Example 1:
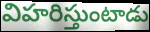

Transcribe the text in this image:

విహరిస్తుంటాడు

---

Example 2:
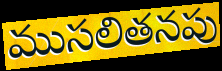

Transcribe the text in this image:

ముసలితనపు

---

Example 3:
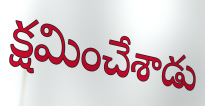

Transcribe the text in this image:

క్షమించేశాడు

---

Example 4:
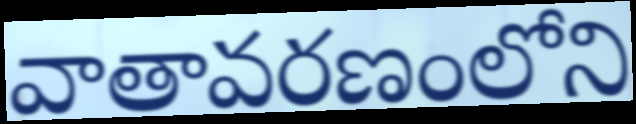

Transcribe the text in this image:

వాతావరణంలోని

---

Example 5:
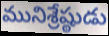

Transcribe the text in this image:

మునిశ్రేష్ఠుడు